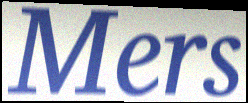
Mers